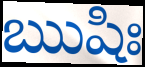
ఋషిః